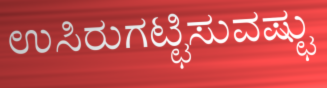
ಉಸಿರುಗಟ್ಟಿಸುವಷ್ಟು